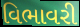
વિભાવરી